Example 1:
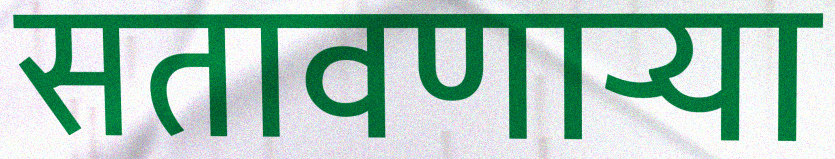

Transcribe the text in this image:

सतावणार्‍या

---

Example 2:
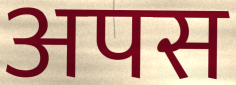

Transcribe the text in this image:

अपस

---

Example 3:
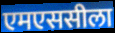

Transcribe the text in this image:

एमएससीला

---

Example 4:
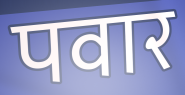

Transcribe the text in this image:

पवार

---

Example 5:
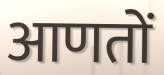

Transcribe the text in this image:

आणतों